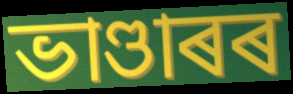
ভাণ্ডাৰৰ